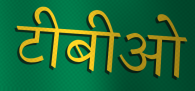
टीबीओ